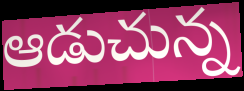
ఆడుచున్న